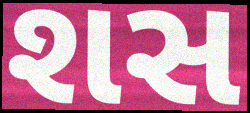
શસ